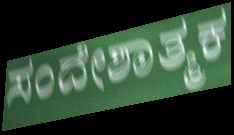
ಸಂದೇಶಾತ್ಮಕ